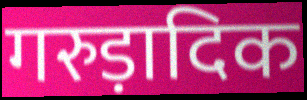
गरुड़ादिक